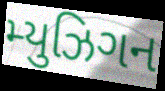
મ્યુઝિગન